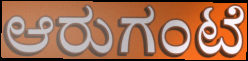
ಆರುಗಂಟೆ